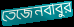
তেজেনবাবুর